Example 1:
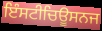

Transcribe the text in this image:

ਇੰਸਟੀਚਿਊਸਨਜ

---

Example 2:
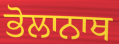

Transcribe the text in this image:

ਭੋਲਾਨਾਥ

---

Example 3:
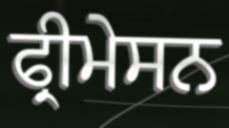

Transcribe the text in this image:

ਫ੍ਰੀਮੇਸਨ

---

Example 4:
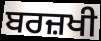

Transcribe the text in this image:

ਬਰਜ਼ਖੀ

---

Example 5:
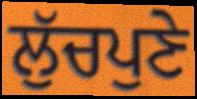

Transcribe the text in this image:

ਲੁੱਚਪੁਣੇ